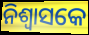
ନିଶ୍ଵାସକେ